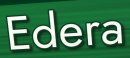
Edera